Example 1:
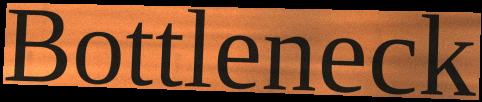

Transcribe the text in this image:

Bottleneck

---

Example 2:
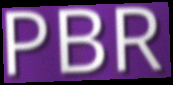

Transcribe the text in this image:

PBR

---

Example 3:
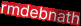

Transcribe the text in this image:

rmdebnath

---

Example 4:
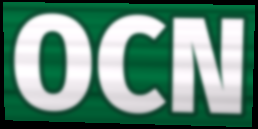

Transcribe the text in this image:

OCN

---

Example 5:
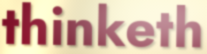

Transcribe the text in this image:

thinketh